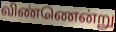
விண்ணென்று